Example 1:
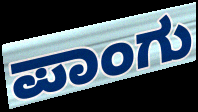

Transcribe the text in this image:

ಪಾಂಗು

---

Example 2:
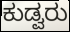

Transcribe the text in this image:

ಕುಡ್ವರು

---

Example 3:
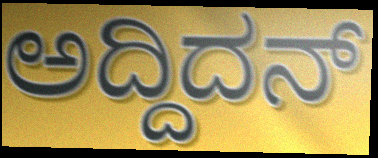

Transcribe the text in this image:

ಅದ್ದಿದನ್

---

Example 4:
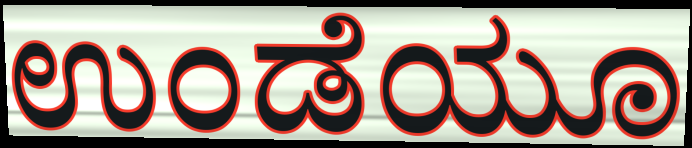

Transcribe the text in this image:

ಉಂಡೆಯೂ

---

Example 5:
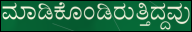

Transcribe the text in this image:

ಮಾಡಿಕೊಂಡಿರುತ್ತಿದ್ದವು